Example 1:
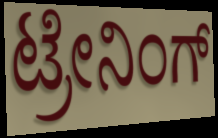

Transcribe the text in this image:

ಟ್ರೇನಿಂಗ್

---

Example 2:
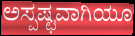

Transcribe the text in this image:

ಅಸ್ಪಷ್ಟವಾಗಿಯೂ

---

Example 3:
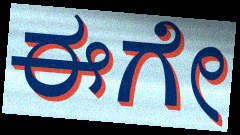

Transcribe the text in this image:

ಈಗೇ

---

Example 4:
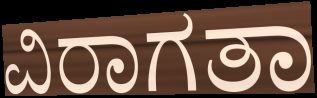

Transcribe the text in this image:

ವಿರಾಗತಾ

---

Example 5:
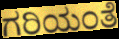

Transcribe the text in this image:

ಗರಿಯಂತೆ